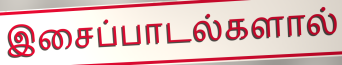
இசைப்பாடல்களால்